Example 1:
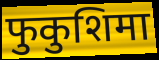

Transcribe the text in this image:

फुकुशिमा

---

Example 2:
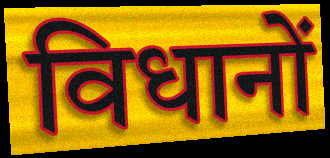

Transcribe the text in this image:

विधानों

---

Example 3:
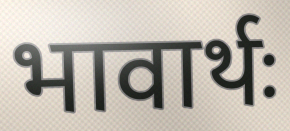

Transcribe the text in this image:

भावार्थः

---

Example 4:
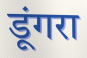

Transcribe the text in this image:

डूंगरा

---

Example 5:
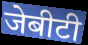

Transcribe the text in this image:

जेबीटी